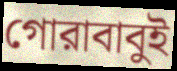
গোরাবাবুই